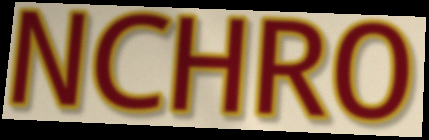
NCHRO